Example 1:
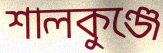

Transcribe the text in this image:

শালকুঞ্জে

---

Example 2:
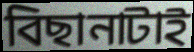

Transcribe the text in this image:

বিছানাটাই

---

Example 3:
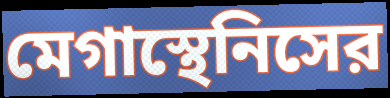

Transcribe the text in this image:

মেগাস্থেনিসের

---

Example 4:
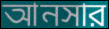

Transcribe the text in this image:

আনসার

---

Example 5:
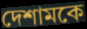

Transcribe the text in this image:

দেশামকে